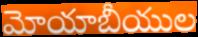
మోయాబీయుల